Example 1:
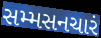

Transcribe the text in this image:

સમ્મસનચારં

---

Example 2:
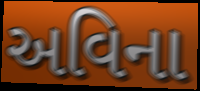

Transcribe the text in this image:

અવિના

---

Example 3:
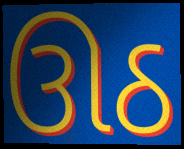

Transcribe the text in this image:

ઊઠ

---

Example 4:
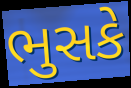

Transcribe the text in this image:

ભુસકે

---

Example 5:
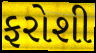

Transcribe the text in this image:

ફરોશી